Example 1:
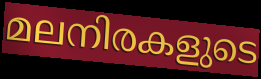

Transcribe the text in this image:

മലനിരകളുടെ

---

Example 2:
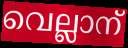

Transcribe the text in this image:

വെല്ലാന്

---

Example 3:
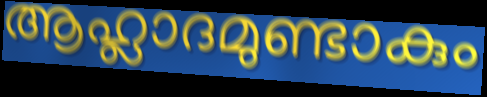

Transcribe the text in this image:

ആഹ്ലാദമുണ്ടാകും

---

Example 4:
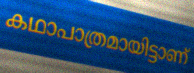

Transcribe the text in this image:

കഥാപാത്രമായിട്ടാണ്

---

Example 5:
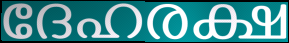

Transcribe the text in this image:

ദേഹരക്ഷ